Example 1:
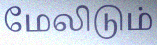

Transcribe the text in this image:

மேலிடும்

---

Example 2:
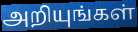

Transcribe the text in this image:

அறியுங்கள்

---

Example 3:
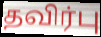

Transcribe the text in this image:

தவிர்பு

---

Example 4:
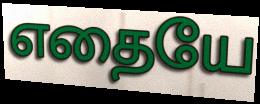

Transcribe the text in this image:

எதையே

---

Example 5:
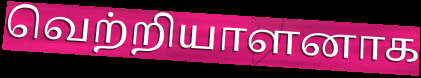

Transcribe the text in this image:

வெற்றியாளனாக